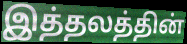
இத்தலத்தின்